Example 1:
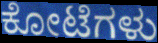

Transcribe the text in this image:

ಕೋಟೆಗಳು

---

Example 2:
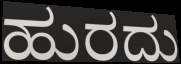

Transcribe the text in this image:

ಹುರದು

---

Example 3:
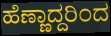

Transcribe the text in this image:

ಹೆಣ್ಣಾದ್ದರಿಂದ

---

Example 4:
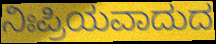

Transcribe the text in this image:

ನಿಃಪ್ರಿಯವಾದುದ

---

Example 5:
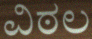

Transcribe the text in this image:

ವಿಠಲ